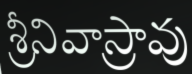
శ్రీనివాస్రావు